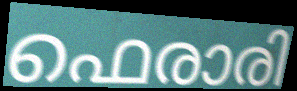
ഫെരാരി